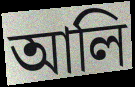
আলি